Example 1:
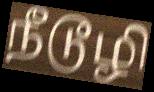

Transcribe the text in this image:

நீடூழி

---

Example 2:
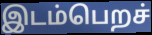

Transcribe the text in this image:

இடம்பெறச்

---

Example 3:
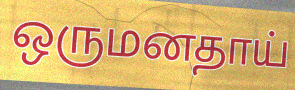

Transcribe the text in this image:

ஒருமனதாய்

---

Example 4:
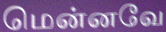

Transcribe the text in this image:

மென்னவே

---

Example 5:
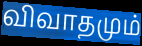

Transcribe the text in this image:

விவாதமும்